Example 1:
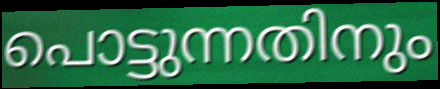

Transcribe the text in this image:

പൊട്ടുന്നതിനും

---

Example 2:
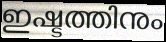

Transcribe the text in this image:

ഇഷ്ടത്തിനും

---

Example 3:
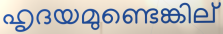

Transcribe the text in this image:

ഹൃദയമുണ്ടെങ്കില്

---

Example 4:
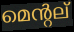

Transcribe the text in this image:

മെന്റല്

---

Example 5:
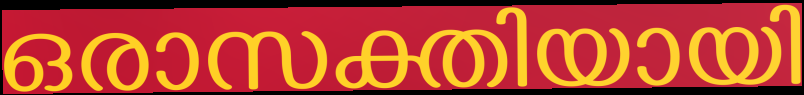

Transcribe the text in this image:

ഒരാസക്തിയായി